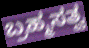
ಬ್ರಹ್ಮಸತ್ವ